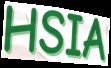
HSIA